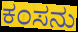
ಕಂಸನು